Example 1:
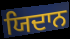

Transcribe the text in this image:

ਯਿਦਾਨ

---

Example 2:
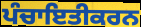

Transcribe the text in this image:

ਪੰਚਾਇਤੀਕਰਨ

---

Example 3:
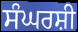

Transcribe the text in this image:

ਸੰਘਰਸ਼ੀ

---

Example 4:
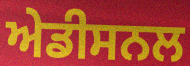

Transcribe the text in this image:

ਅੇਡੀਸਨਲ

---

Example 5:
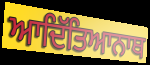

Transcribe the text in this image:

ਆਦਿੱਤਿਆਨਾਥ